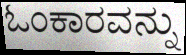
ಓಂಕಾರವನ್ನು